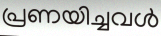
പ്രണയിച്ചവൾ